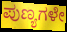
ಪುಣ್ಯಗಳೇ